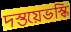
দস্তয়েভস্কি